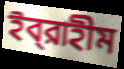
ইব্‌রাহীম